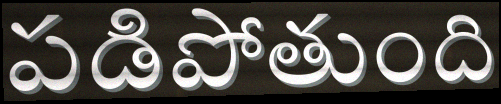
పడిపోతుంది